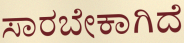
ಸಾರಬೇಕಾಗಿದೆ